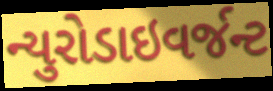
ન્યુરોડાઇવર્જન્ટ